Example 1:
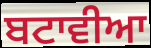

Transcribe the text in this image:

ਬਟਾਵੀਆ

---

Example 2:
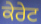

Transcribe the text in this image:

ਕੇਰੇਟ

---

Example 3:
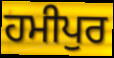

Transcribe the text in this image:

ਹਮੀਪੁਰ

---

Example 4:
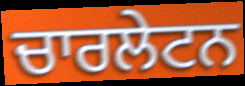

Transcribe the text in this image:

ਚਾਰਲੇਟਨ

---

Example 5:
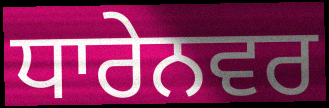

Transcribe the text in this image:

ਧਾਰੇਨਵਰ